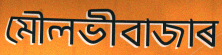
মৌলভীবাজাৰ